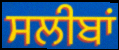
ਸਲੀਬਾਂ